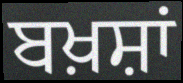
ਬਖ਼ਸ਼ਾਂ